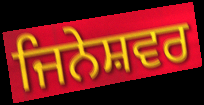
ਜਿਨੇਸ਼ਵਰ